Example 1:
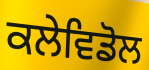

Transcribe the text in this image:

ਕਲੇਵਿਡੋਲ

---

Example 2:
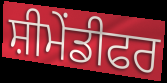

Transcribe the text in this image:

ਸ਼ੀਮੇਂਡੀਫਰ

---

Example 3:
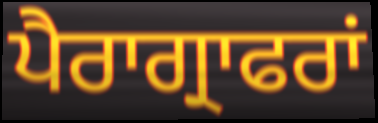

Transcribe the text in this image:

ਪੈਰਾਗ੍ਰਾਫਰਾਂ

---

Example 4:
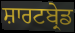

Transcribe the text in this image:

ਸ਼ਾਰਟਬ੍ਰੇਡ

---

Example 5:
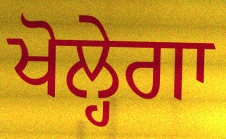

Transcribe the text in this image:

ਖੋਲ੍ਹੇਗਾ